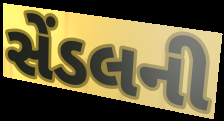
સેંડલની